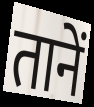
तानें